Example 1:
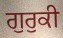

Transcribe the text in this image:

ਗੁਰੁਕੀ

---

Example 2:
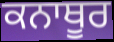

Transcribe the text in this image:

ਕਨਾਥੂਰ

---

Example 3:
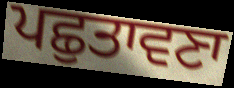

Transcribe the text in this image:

ਪਛੁਤਾਵਣਾ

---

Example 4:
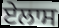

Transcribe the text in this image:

ਏਲਾਸ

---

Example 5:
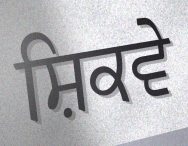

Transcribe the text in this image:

ਸ਼ਿਕਵੇ